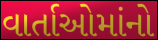
વાર્તાઓમાંનો